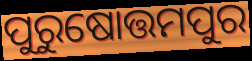
ପୁରୁଷୋତ୍ତମପୁର